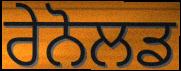
ਰੇਨੋਲਡ